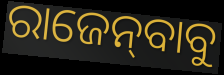
ରାଜେନ୍‌ବାବୁ